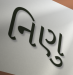
નિણુ